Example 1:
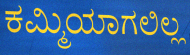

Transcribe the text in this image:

ಕಮ್ಮಿಯಾಗಲಿಲ್ಲ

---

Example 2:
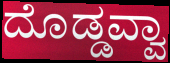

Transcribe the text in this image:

ದೊಡ್ಡವ್ವಾ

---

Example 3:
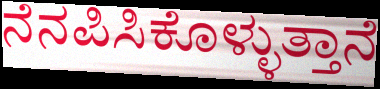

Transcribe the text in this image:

ನೆನಪಿಸಿಕೊಳ್ಳುತ್ತಾನೆ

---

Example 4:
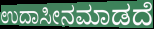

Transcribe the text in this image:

ಉದಾಸೀನಮಾಡದೆ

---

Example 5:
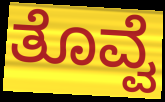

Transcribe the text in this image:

ತೊವ್ವೆ